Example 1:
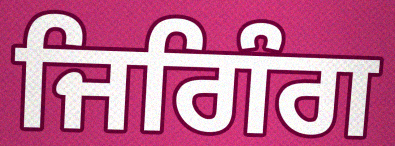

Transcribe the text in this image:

ਜਿਗਿੰਗ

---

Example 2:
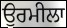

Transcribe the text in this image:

ਉਰਮੀਲਾ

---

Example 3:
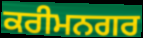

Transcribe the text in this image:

ਕਰੀਮਨਗਰ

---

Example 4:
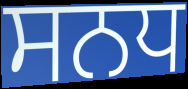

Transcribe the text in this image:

ਸਨਧ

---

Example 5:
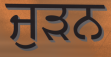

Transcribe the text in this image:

ਜੁਡ਼ਨ